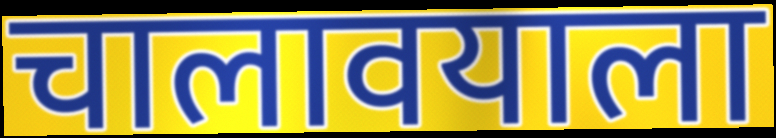
चालावयाला